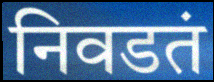
निवडतं